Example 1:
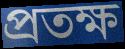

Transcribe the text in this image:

প্রতক্ষ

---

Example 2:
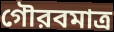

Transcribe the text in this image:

গৌরবমাত্র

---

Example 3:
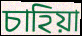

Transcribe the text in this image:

চাহিয়া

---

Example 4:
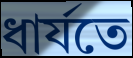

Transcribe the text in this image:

ধার্যতে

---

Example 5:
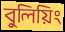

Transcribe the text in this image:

বুলিয়িং